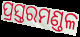
ପ୍ରସ୍ତରମଣ୍ଡଳ